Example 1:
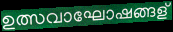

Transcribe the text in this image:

ഉത്സവാഘോഷങ്ങള്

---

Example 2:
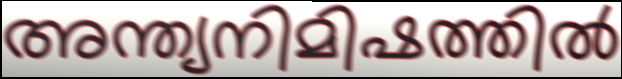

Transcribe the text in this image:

അന്ത്യനിമിഷത്തിൽ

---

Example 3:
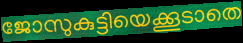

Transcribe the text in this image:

ജോസുകുട്ടിയെക്കൂടാതെ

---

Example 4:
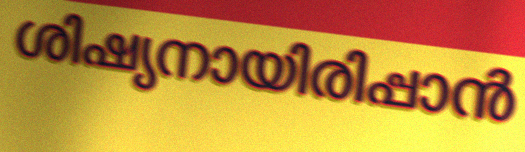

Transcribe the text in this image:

ശിഷ്യനായിരിപ്പാൻ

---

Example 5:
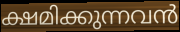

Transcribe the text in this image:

ക്ഷമിക്കുന്നവൻ